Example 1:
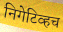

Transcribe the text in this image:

निगेटिव्हच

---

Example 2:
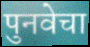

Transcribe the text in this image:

पुनवेचा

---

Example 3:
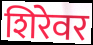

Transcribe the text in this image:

शिरेवर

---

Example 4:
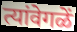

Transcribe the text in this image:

त्यांवेगळें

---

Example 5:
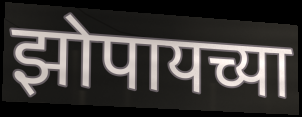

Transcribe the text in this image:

झोपायच्या